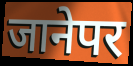
जानेपर